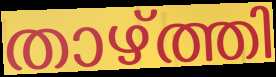
താഴ്ത്തി